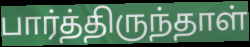
பார்த்திருந்தாள்